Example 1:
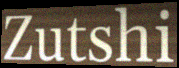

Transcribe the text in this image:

Zutshi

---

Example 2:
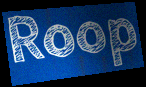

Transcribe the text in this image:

Roop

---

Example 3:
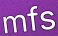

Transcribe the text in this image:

mfs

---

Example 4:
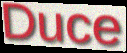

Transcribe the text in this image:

Duce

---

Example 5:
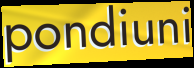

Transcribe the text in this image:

pondiuni